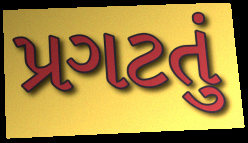
પ્રગટતું